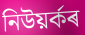
নিউয়ৰ্কৰ